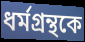
ধর্মগ্রন্থকে